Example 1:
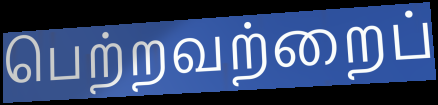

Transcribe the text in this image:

பெற்றவற்றைப்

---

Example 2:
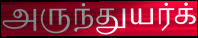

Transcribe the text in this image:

அருந்துயர்க்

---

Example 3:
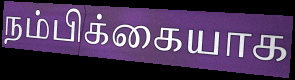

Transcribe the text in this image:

நம்பிக்கையாக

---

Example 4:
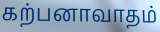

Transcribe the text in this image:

கற்பனாவாதம்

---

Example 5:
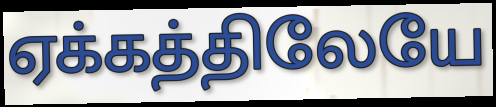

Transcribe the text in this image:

ஏக்கத்திலேயே